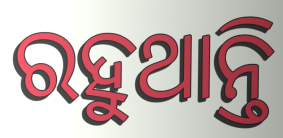
ରହୁଥାନ୍ତି